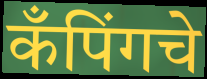
कँपिंगचे